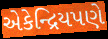
એકેન્દ્રિયપણે